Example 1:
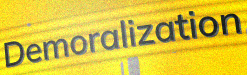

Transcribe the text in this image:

Demoralization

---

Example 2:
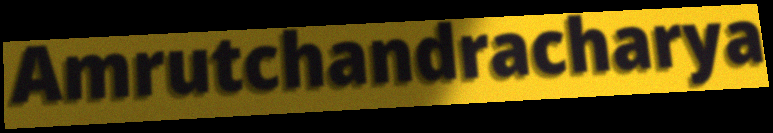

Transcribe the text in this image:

Amrutchandracharya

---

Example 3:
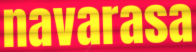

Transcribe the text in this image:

navarasa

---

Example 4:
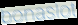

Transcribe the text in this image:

bonaslot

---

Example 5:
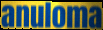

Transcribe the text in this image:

anuloma